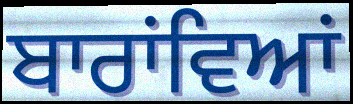
ਬਾਰਾਂਵਿਆਂ